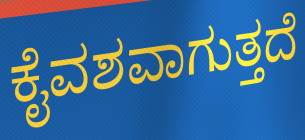
ಕೈವಶವಾಗುತ್ತದೆ